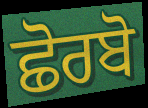
ਛੋਰਬੋ